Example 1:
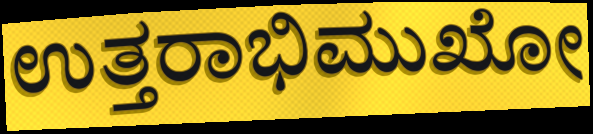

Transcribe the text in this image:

ಉತ್ತರಾಭಿಮುಖೋ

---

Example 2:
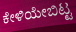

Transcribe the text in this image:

ಕೇಳಿಯೇಬಿಟ್ಟ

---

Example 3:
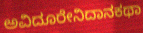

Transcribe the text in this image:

ಅವಿದೂರೇನಿದಾನಕಥಾ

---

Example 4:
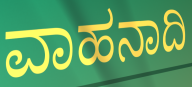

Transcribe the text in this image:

ವಾಹನಾದಿ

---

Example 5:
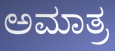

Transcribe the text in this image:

ಅಮಾತ್ರ